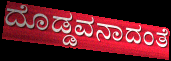
ದೊಡ್ಡವನಾದಂತೆ